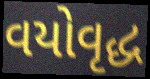
વયોવૃદ્ધ